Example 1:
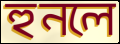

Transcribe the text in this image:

হুনলে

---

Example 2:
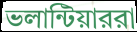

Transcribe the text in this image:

ভলান্টিয়াররা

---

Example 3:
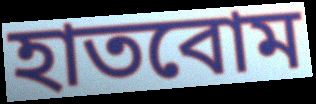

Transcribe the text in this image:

হাতবোম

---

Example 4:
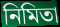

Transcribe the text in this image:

নিমিতা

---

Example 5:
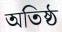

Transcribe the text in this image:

অতিষ্ঠ